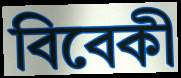
বিবেকী